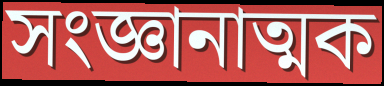
সংজ্ঞানাত্মক